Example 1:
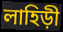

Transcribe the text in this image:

লাহিড়ী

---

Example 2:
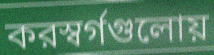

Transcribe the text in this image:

করস্বর্গগুলোয়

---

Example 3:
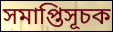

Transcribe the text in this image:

সমাপ্তিসূচক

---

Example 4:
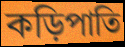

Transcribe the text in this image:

কড়িপাতি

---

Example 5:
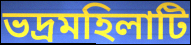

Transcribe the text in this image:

ভদ্রমহিলাটি